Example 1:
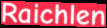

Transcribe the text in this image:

Raichlen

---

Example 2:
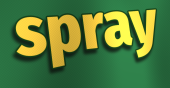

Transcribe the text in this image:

spray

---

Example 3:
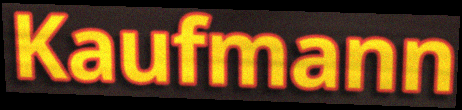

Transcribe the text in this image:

Kaufmann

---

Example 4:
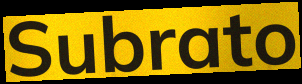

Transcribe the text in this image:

Subrato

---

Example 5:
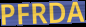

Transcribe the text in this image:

PFRDA